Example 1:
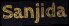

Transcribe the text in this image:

Sanjida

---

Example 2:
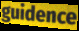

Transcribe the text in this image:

guidence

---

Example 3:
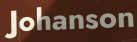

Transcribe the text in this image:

Johanson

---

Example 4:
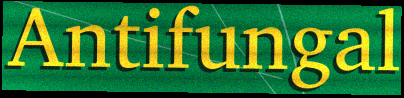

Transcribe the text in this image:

Antifungal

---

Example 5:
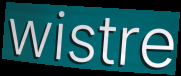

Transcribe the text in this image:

wistre